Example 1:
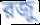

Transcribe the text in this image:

রজু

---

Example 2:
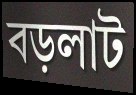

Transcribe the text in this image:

বড়লাট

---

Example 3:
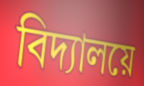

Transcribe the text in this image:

বিদ্যালয়ে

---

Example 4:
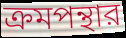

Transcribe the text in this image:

ক্রমপন্থার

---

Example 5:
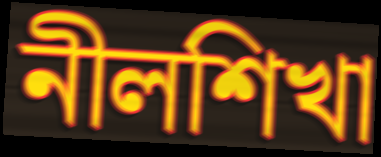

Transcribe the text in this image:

নীলশিখা